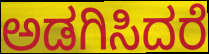
ಅಡಗಿಸಿದರೆ